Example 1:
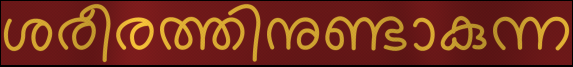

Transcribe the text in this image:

ശരീരത്തിനുണ്ടാകുന്ന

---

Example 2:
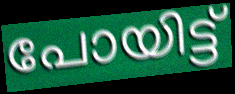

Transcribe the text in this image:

പോയിട്ട്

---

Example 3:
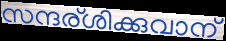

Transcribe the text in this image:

സന്ദര്ശിക്കുവാന്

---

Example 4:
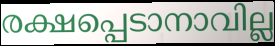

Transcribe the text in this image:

രക്ഷപ്പെടാനാവില്ല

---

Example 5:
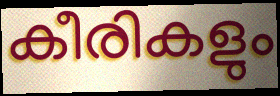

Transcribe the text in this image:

കീരികളും